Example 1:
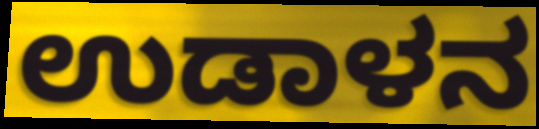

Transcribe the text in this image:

ಉಡಾಳನ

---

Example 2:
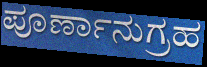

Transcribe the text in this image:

ಪೂರ್ಣಾನುಗ್ರಹ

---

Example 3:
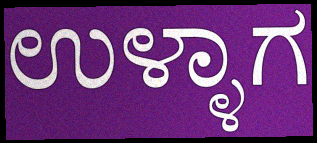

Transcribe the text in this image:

ಉಳ್ಳಾಗ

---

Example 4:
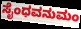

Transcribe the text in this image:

ಸೈಂಧವನುಮಂ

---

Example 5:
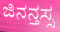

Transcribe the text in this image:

ಜಿನನ್ತಸ್ಸ